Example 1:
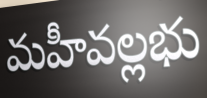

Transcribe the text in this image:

మహీవల్లభు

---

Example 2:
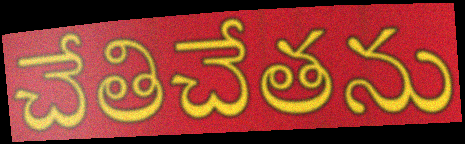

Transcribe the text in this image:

చేతిచేతను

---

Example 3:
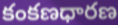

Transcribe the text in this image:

కంకణధారణ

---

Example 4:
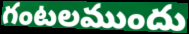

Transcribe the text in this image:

గంటలముందు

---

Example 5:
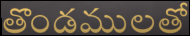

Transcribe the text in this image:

తొండములతో